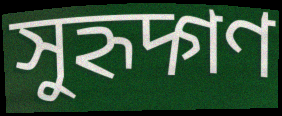
সুহৃদ্গণ